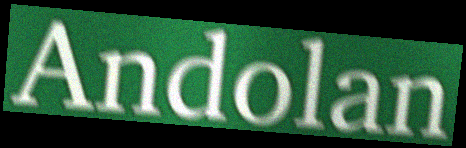
Andolan